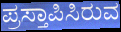
ಪ್ರಸ್ತಾಪಿಸಿರುವ